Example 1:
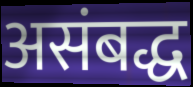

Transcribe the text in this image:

असंबद्ध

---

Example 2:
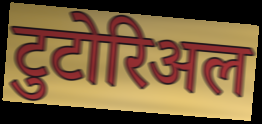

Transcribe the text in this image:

टुटोरिअल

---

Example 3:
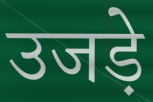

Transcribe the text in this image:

उजड़े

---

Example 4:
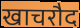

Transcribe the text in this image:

खाचरौद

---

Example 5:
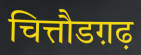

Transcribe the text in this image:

चित्तौडग़ढ़